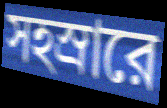
সহস্রারে